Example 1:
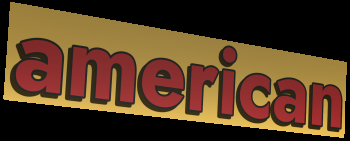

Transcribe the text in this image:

american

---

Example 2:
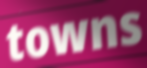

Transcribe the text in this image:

towns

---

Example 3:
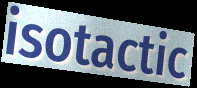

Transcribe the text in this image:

isotactic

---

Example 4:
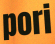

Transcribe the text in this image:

pori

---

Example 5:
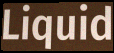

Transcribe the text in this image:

Liquid